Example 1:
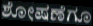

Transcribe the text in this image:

ಶೋಷಣೆಗೂ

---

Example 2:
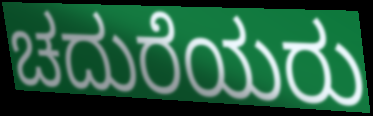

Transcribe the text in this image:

ಚದುರೆಯರು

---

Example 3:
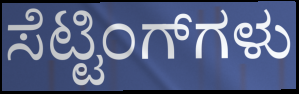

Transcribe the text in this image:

ಸೆಟ್ಟಿಂಗ್‌ಗಳು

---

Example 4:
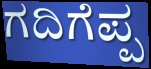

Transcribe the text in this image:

ಗದಿಗೆಪ್ಪ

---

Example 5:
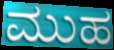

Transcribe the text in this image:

ಮುಹ